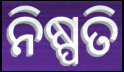
ନିଷ୍ପତି